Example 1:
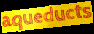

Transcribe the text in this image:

aqueducts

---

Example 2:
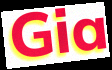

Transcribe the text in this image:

Gia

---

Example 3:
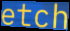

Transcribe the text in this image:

etch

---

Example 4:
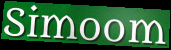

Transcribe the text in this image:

Simoom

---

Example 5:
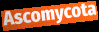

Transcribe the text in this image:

Ascomycota